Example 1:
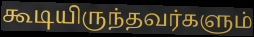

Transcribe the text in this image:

கூடியிருந்தவர்களும்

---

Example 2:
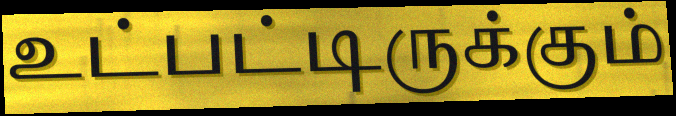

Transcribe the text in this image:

உட்பட்டிருக்கும்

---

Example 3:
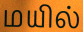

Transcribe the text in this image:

மயில்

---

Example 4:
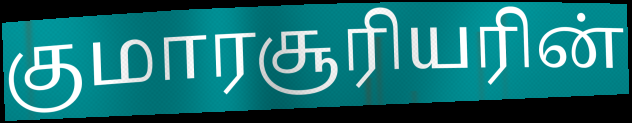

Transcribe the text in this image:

குமாரசூரியரின்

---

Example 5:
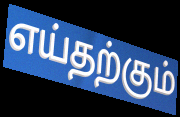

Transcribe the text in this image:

எய்தற்கும்